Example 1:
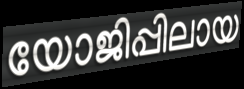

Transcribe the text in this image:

യോജിപ്പിലായ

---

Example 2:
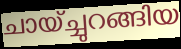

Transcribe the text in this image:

ചായ്ച്ചുറങ്ങിയ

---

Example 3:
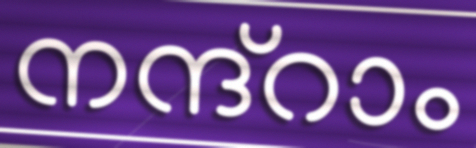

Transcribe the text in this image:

നന്ദ്റാം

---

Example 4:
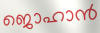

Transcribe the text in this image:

ജൊഹാൻ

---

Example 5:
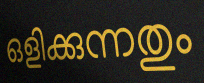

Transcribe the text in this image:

ഒളിക്കുന്നതും